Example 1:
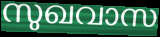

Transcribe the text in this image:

സുഖവാസ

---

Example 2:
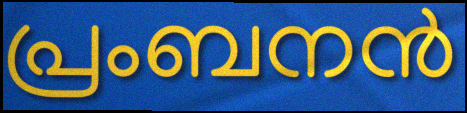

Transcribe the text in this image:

പ്രംബനൻ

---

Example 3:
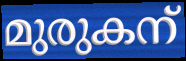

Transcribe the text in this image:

മുരുകന്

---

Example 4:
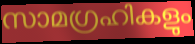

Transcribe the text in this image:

സാമഗ്രഹികളും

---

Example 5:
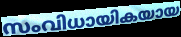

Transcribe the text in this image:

സംവിധായികയായ